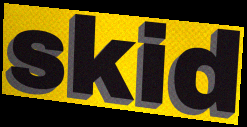
skid